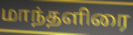
மாந்தளிரை